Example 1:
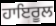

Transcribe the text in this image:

ਹਾਇਰੂਲ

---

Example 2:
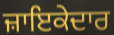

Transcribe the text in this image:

ਜ਼ਾਇਕੇਦਾਰ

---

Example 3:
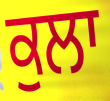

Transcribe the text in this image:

ਕੁਲਾ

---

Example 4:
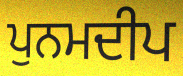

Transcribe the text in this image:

ਪੁਨਮਦੀਪ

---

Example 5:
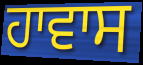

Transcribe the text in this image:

ਹਾਵਾਸ